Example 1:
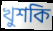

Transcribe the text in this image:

খুশকি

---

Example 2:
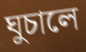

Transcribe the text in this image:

ঘুচালে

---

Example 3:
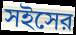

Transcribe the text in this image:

সইসের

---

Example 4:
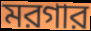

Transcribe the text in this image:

মরগার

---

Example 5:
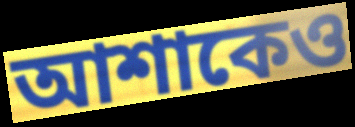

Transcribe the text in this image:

আশাকেও